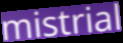
mistrial